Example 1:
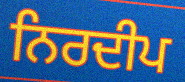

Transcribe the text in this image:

ਨਿਰਦੀਪ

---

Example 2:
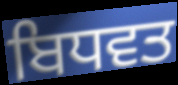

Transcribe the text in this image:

ਬਿਧਵਤ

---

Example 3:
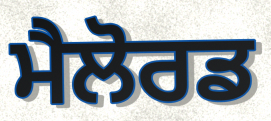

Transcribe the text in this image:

ਮੈਲੋਰਡ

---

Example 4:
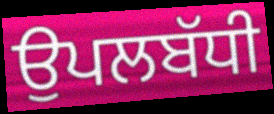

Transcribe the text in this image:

ਉਪਲਬੱਧੀ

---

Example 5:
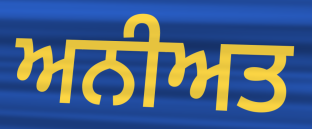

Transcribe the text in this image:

ਅਨੀਅਤ